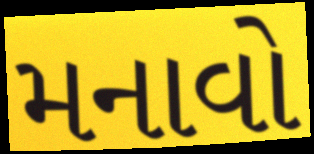
મનાવો